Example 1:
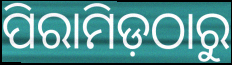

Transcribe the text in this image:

ପିରାମିଡ଼ଠାରୁ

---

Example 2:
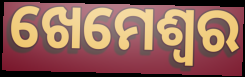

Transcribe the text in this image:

ଖେମେଶ୍ଵର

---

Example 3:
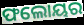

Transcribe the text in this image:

ଫଲୋୟର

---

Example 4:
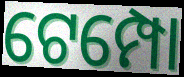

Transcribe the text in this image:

ଟେମ୍ପୋ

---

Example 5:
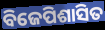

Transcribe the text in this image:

ବିଜେପିଶାସିତ